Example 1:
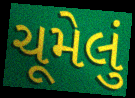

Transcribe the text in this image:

ચૂમેલું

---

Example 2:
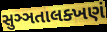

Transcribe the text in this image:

સુઞ્ઞતાલક્ખણં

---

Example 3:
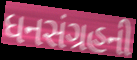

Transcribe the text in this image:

ધનસંગ્રહની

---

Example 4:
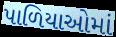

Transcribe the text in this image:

પાળિયાઓમાં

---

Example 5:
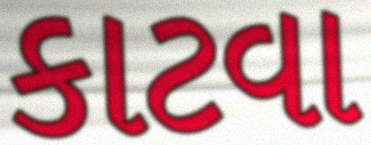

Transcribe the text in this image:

કાટવા